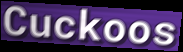
Cuckoos